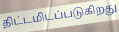
திட்டமிடப்படுகிறது